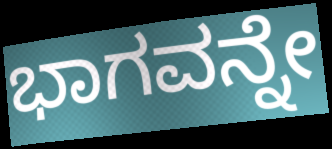
ಭಾಗವನ್ನೇ